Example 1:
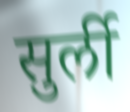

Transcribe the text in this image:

सुर्ली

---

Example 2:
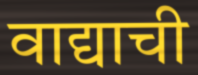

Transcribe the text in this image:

वाद्याची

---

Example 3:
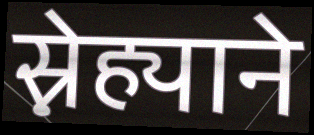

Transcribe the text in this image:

स्नेह्याने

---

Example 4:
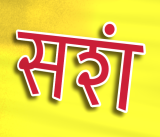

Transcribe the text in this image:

सशं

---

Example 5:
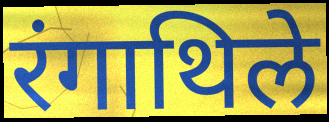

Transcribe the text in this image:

रंगाथिले